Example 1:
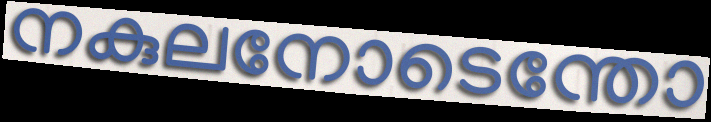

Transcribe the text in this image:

നകുലനോടെന്തോ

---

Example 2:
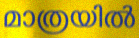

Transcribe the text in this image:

മാത്രയിൽ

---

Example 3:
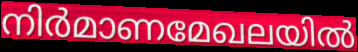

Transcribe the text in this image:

നിർമാണമേഖലയിൽ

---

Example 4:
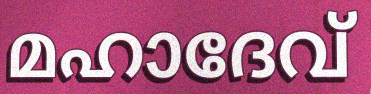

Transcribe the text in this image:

മഹാദേവ്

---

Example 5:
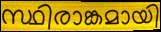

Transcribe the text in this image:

സ്ഥിരാങ്കമായി